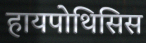
हायपोथिसिस